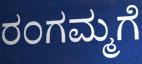
ರಂಗಮ್ಮಗೆ